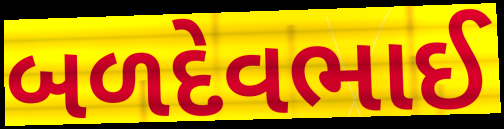
બળદેવભાઈ